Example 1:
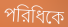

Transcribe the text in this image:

পরিধিকে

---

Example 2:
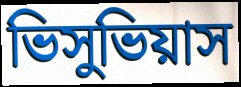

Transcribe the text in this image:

ভিসুভিয়াস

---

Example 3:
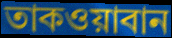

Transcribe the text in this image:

তাকওয়াবান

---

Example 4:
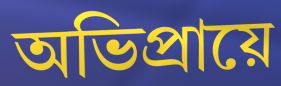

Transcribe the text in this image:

অভিপ্রায়ে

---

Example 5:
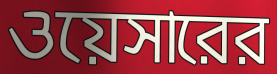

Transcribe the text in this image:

ওয়েসারের